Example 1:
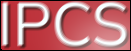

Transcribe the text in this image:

IPCS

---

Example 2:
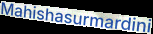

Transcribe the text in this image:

Mahishasurmardini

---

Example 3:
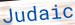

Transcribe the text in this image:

Judaic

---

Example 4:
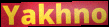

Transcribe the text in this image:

Yakhno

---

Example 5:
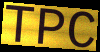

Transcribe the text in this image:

TPC